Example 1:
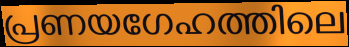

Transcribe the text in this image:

പ്രണയഗേഹത്തിലെ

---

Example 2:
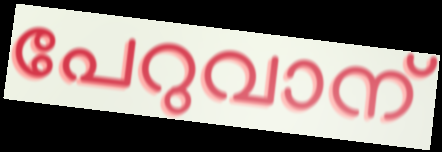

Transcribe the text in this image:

പേറുവാന്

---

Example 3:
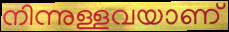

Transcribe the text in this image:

നിന്നുള്ളവയാണ്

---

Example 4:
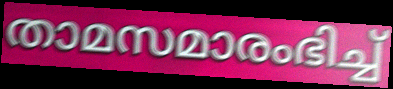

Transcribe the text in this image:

താമസമാരംഭിച്ച്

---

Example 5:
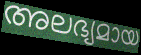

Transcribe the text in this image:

അലഭ്യമായ